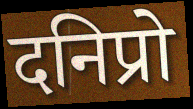
दनिप्रो